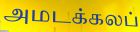
அமடக்கலப்